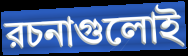
রচনাগুলোই